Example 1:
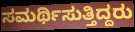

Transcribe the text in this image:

ಸಮರ್ಥಿಸುತ್ತಿದ್ದರು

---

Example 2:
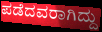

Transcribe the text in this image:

ಪಡೆದವರಾಗಿದ್ದು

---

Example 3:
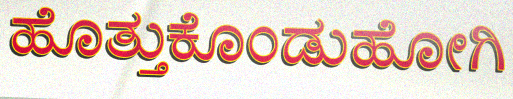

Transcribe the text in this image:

ಹೊತ್ತುಕೊಂಡುಹೋಗಿ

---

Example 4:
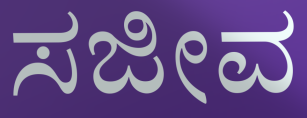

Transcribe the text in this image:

ಸಜೀವ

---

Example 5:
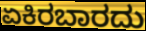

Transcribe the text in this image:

ಏಕಿರಬಾರದು